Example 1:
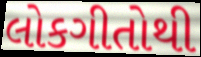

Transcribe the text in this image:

લોકગીતોથી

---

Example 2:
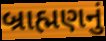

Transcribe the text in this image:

બ્રાહ્મણનું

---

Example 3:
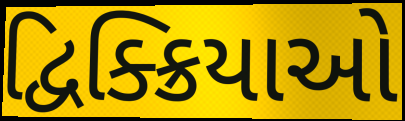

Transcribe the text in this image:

દ્વિક્ક્રિયાઓ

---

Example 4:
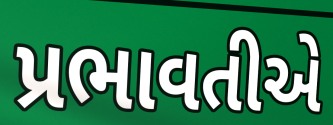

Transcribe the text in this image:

પ્રભાવતીએ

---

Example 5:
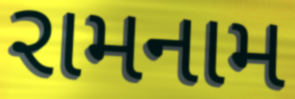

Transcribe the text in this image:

રામનામ